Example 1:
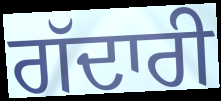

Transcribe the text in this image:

ਗੱਦਾਰੀ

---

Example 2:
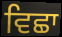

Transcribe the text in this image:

ਵਿਛਾ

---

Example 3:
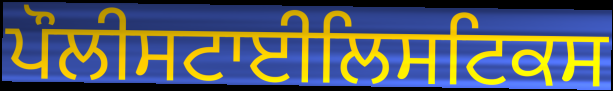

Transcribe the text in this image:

ਪੌਲੀਸਟਾਈਲਿਸਟਿਕਸ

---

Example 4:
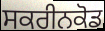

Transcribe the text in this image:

ਸਕਰੀਨਕੋਡ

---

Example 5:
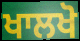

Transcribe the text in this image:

ਖਾਲਖੋ